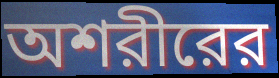
অশরীরের